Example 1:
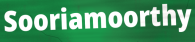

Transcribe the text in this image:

Sooriamoorthy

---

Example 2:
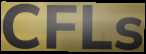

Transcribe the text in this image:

CFLs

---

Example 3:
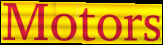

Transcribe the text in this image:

Motors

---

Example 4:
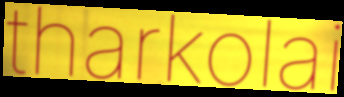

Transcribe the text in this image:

tharkolai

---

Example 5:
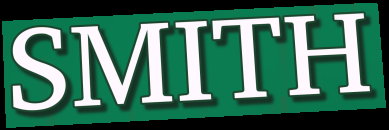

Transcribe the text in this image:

SMITH